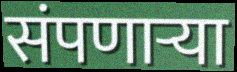
संपणार्‍या